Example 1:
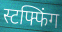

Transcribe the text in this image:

स्टफ्फिंग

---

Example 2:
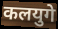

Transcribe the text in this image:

कलयुगे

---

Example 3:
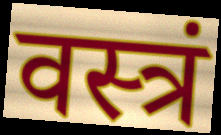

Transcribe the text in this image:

वस्त्रं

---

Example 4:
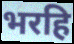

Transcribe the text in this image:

भरहि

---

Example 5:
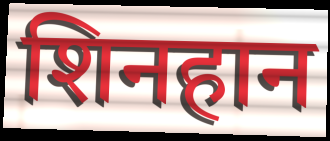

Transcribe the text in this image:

शिनहान